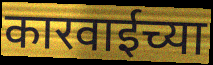
कारवाईच्या